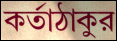
কর্তাঠাকুর